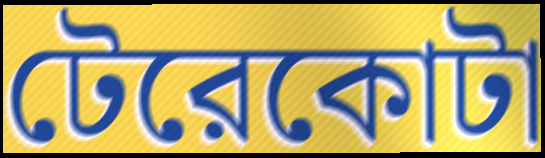
টেরেকোটা